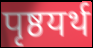
पृष्ठयर्थ